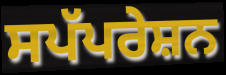
ਸਪੱਪਰੇਸ਼ਨ